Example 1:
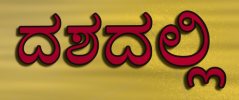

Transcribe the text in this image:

ದಶದಲ್ಲಿ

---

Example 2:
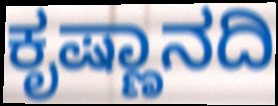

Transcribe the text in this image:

ಕೃಷ್ಣಾನದಿ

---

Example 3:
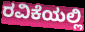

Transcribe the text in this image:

ರವಿಕೆಯಲ್ಲಿ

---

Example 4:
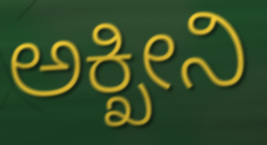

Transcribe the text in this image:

ಅಕ್ಖೀನಿ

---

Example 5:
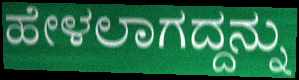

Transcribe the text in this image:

ಹೇಳಲಾಗದ್ದನ್ನು